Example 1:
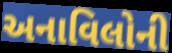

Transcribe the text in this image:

અનાવિલોની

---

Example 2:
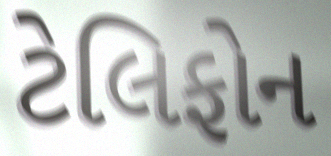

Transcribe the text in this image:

ટેલિફોન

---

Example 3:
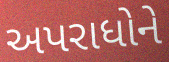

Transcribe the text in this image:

અપરાધોને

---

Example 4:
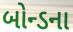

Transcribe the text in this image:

બોન્ડના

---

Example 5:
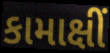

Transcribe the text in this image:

કામાક્ષીં